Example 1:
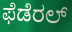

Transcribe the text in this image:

ಫೆಡೆರಲ್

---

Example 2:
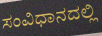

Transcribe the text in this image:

ಸಂವಿಧಾನದಲ್ಲಿ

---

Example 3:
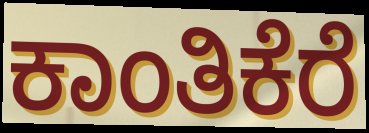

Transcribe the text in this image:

ಕಾಂತಿಕೆರೆ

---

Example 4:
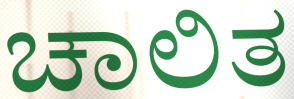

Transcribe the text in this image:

ಚಾಲಿತ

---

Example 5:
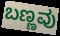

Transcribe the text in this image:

ಬಣ್ಣವು